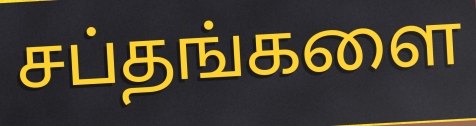
சப்தங்களை